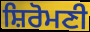
ਸ਼ਿਰੋਮਣੀ